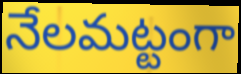
నేలమట్టంగా